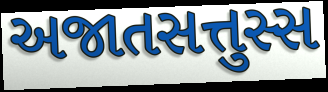
અજાતસત્તુસ્સ